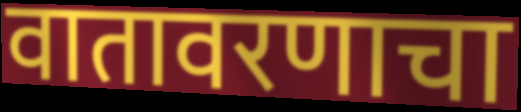
वातावरणाचा